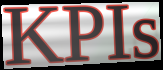
KPIs